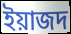
ইয়াজদ